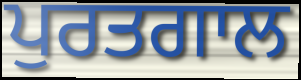
ਪੁਰਤਗਾਲ